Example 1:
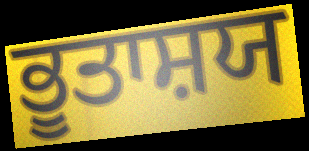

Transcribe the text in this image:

ਭੂਤਾਸ਼ਯ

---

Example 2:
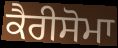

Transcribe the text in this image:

ਕੈਰੀਸੋਮਾ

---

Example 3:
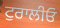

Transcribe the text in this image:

ਟੁਰਾਲੀਓ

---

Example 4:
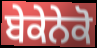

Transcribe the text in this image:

ਬੇਕੇਨੇਕੋ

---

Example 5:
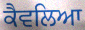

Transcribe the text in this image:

ਕੈਵਲਿਆ